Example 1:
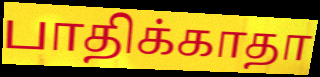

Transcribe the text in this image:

பாதிக்காதா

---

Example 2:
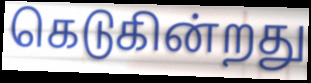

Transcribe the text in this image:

கெடுகின்றது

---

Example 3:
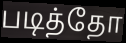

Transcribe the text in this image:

படித்தோ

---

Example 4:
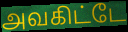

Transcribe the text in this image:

அவகிட்டே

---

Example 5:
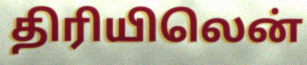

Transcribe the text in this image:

திரியிலென்